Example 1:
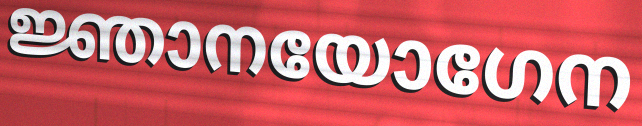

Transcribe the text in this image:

ജ്ഞാനയോഗേന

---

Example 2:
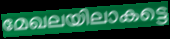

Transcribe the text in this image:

മേഖലയിലാകട്ടെ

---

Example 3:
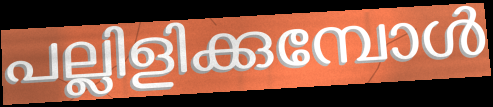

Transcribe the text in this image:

പല്ലിളിക്കുമ്പോൾ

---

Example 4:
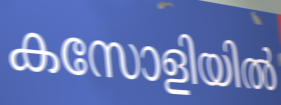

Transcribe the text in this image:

കസോളിയിൽ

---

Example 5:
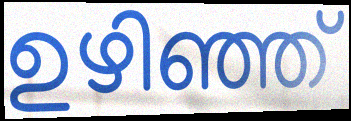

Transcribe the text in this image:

ഉഴിഞ്ഞ്